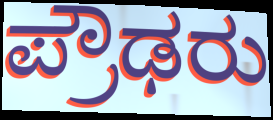
ಪ್ರೌಢರು